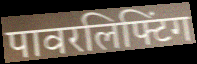
पावरलिफ्टिंग